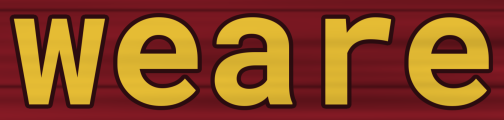
weare